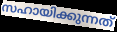
സഹായിക്കുന്നത്